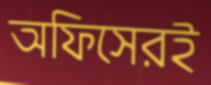
অফিসেরই